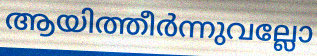
ആയിത്തീർന്നുവല്ലോ